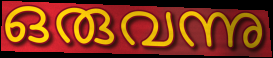
ഒരുവന്നു